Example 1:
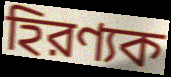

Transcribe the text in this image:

হিরণ্যক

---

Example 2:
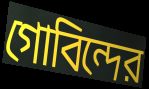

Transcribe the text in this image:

গোবিন্দের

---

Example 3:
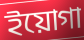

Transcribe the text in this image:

ইয়োগা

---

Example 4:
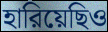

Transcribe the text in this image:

হারিয়েছিও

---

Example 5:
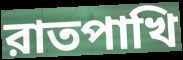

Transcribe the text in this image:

রাতপাখি